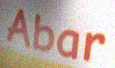
Abar